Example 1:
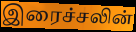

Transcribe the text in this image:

இரைச்சலின்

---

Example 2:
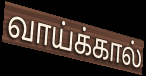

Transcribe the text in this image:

வாய்க்கால்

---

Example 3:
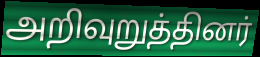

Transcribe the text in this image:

அறிவுறுத்தினர்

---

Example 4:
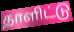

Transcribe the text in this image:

தாளிட்டு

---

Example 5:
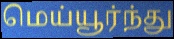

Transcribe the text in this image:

மெய்யூர்ந்து